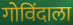
गोविंदाला